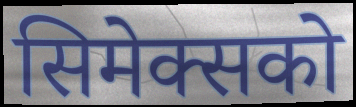
सिमेक्सको